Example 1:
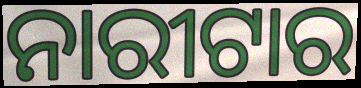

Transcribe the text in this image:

ନାରୀଟାର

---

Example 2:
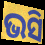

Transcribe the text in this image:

ଭସି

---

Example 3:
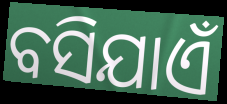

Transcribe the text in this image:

ବସିଯାଏଁ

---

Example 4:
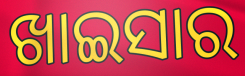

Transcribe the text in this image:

ଖାଇସାର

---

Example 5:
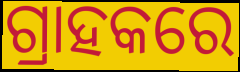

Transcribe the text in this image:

ଗ୍ରାହକରେ